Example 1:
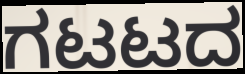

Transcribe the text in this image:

ಗಟಟದ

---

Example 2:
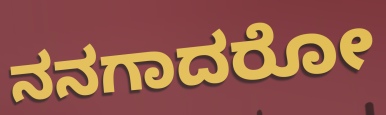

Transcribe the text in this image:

ನನಗಾದರೋ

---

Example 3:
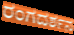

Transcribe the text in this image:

ರಂಗದರ್ಶನ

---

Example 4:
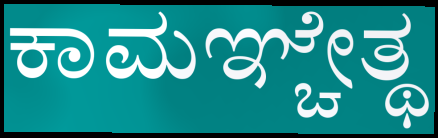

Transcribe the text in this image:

ಕಾಮಞ್ಚೇತ್ಥ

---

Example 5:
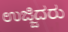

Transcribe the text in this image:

ಉಜ್ಜಿದರು